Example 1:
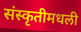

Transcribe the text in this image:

संस्कृतीमधली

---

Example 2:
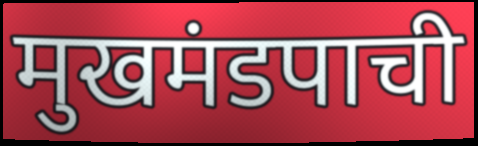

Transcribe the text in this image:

मुखमंडपाची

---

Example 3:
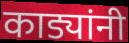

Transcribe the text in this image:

काड्यांनी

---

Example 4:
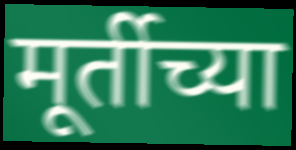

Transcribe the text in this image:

मूर्तीच्या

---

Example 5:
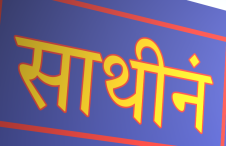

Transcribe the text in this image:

साथीनं